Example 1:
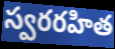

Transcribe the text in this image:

స్వరరహిత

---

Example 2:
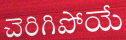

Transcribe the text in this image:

చెరిగిపోయే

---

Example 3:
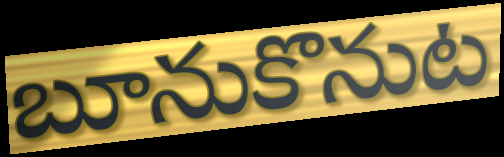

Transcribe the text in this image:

బూనుకొనుట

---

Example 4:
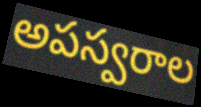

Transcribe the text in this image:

అపస్వరాల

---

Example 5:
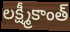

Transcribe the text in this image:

లక్ష్మీకాంత్